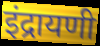
इंद्रायणी